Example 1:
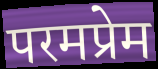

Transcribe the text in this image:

परमप्रेम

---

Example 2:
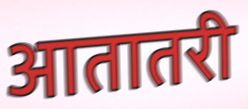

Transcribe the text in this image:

आतातरी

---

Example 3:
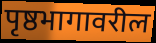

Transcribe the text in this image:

पृष्ठभागावरील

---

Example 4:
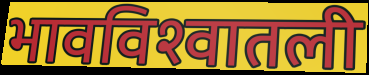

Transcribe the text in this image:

भावविश्वातली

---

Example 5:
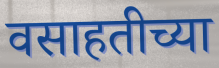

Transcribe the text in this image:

वसाहतीच्या